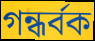
গন্ধৰ্বক